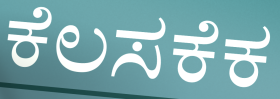
ಕೆಲಸಕೆಕ